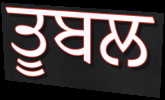
ਤੂਬਲ